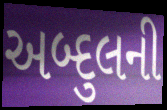
અબ્દુલની